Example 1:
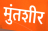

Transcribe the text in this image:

मुंतशीर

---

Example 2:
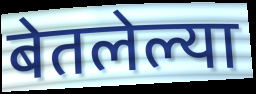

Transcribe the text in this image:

बेतलेल्या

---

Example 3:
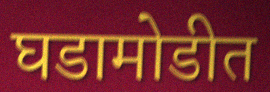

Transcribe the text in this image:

घडामोडीत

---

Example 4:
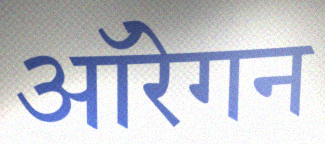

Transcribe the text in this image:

ऑरेगन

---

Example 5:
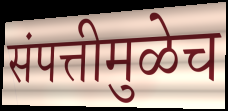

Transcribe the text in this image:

संपत्तीमुळेच